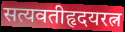
सत्यवतीहृदयरत्न